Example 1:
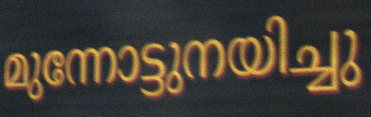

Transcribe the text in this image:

മുന്നോട്ടുനയിച്ചു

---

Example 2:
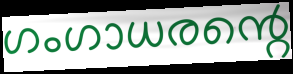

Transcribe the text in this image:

ഗംഗാധരന്റെ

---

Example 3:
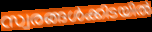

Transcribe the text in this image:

സ്വരങ്ങൾക്കിടയിൽ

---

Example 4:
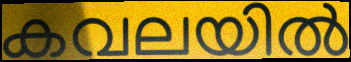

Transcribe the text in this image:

കവലയിൽ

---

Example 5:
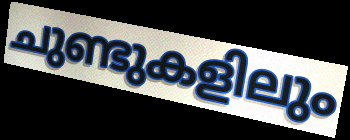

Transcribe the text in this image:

ചുണ്ടുകളിലും